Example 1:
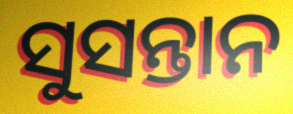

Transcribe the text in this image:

ସୁସନ୍ତାନ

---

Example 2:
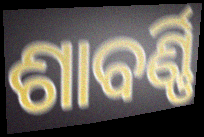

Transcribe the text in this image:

ଶାବର୍ଣ୍ଣି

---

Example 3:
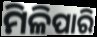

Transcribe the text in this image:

ମିଳିପାରି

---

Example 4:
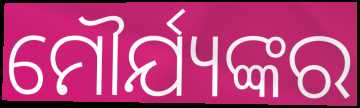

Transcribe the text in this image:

ମୌର୍ଯ୍ୟଙ୍କର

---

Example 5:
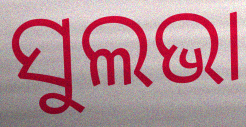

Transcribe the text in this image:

ସୁଲଭା